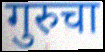
गुरुचा